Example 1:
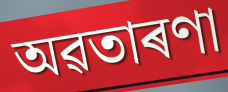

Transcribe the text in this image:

অৱতাৰণা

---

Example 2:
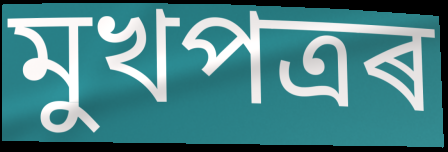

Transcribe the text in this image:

মুখপত্ৰৰ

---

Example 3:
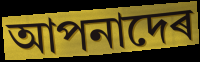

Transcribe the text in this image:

আপনাদেৰ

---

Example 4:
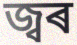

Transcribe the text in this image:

জ্বৰ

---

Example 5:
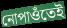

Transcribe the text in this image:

নোপাওঁতেই